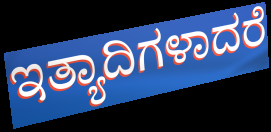
ಇತ್ಯಾದಿಗಳಾದರೆ